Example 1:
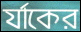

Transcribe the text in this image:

র্যাকের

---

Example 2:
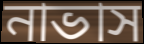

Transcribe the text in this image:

নাভাস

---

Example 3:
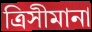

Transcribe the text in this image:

ত্রিসীমানা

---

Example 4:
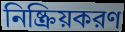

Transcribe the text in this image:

নিষ্ক্রিয়করণ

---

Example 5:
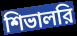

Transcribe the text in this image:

শিভালরি